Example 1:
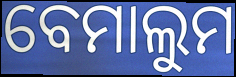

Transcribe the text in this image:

ବେମାଲୁମ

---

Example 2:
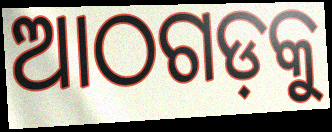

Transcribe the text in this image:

ଆଠଗଡ଼କୁ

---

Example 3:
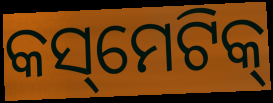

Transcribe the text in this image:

କସ୍‌ମେଟିକ୍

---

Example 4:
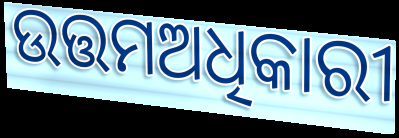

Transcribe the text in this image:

ଉତ୍ତମଅଧିକାରୀ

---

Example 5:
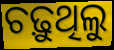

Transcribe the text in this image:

ଚଢ଼ୁଥିଲୁ